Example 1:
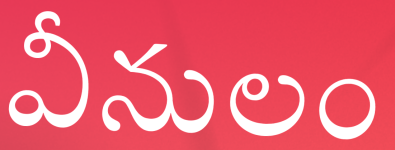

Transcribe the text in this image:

వీనులం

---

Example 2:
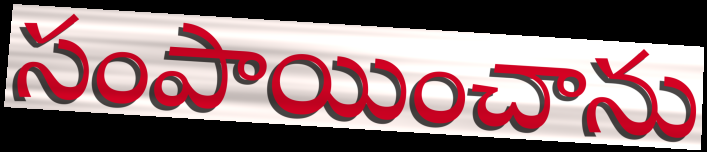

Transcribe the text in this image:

సంపాయించాను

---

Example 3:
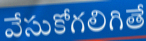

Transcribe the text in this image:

వేసుకోగలిగితే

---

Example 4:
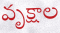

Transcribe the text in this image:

వృక్షాల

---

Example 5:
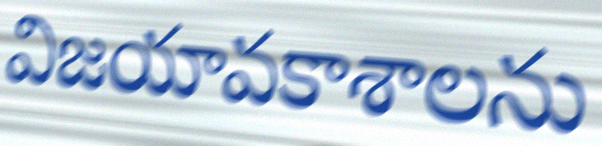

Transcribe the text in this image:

విజయావకాశాలను